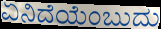
ಏನಿದೆಯೆಂಬುದು